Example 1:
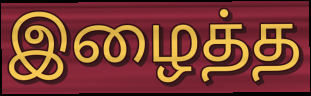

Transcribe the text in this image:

இழைத்த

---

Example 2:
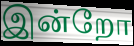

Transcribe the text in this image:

இன்றோ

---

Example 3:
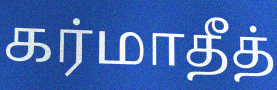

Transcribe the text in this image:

கர்மாதீத்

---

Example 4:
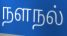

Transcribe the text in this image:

நளநல்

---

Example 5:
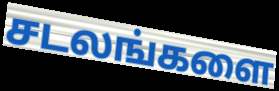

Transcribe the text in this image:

சடலங்களை